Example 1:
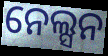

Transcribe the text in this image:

ନେଲ୍ସନ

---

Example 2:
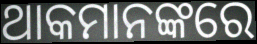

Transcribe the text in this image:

ଥାକମାନଙ୍କରେ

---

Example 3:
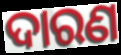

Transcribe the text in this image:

ଦାରଣ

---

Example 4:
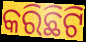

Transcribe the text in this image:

କରିଛିଟି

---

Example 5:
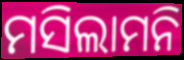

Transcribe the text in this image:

ମସିଲାମନି